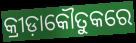
କ୍ରୀଡ଼ାକୌତୁକରେ